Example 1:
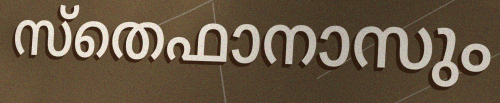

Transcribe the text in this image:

സ്തെഫാനാസും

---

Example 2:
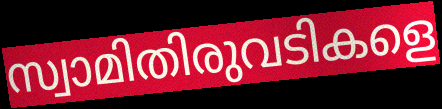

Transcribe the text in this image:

സ്വാമിതിരുവടികളെ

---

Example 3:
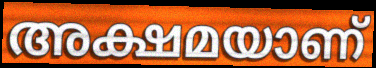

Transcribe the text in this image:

അക്ഷമയാണ്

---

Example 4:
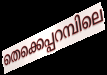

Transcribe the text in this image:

തെക്കെപ്പറമ്പിലെ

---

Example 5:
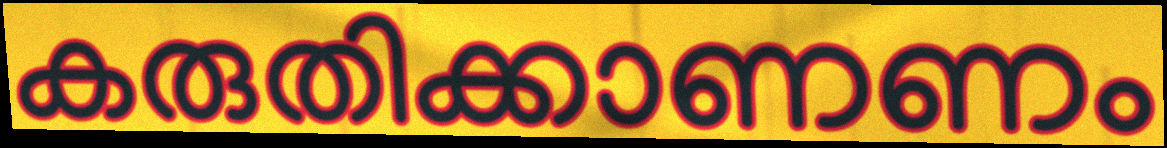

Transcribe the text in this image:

കരുതിക്കാണണം